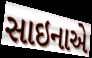
સાઇનાએ